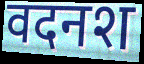
वदनश